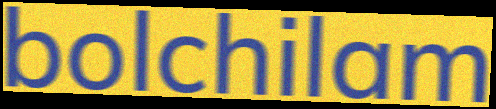
bolchilam